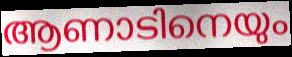
ആണാടിനെയും